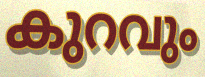
കുറവും